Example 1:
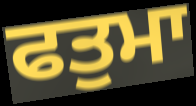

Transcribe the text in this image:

ਫਤੁਮਾ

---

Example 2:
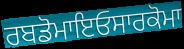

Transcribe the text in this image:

ਰਬਡੋਮਾਇਓਸਾਰਕੋਮਾ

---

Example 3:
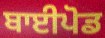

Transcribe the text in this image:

ਬਾਈਪੋਡ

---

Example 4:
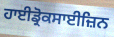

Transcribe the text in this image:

ਹਾਈਡ੍ਰੋਕਸਾਈਜ਼ਿਨ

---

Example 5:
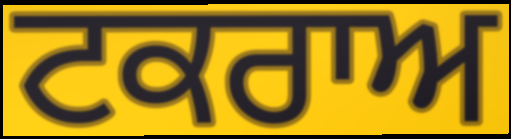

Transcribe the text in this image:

ਟਕਰਾਅ